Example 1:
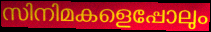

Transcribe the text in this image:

സിനിമകളെപ്പോലും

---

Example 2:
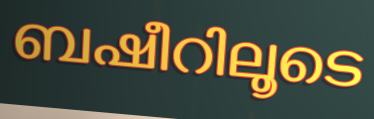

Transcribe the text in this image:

ബഷീറിലൂടെ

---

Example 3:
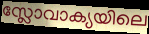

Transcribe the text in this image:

സ്ലോവാക്യയിലെ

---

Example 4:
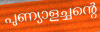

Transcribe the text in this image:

പുണ്യാളച്ചന്റെ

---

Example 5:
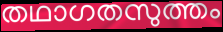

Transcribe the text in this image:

തഥാഗതസുത്തം